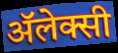
ॲलेक्सी